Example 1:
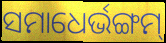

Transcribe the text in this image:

ସମାଧେର୍ଭଙ୍ଗମ୍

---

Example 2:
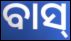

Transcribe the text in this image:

ବାସ୍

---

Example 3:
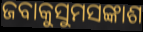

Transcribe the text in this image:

ଜବାକୁସୁମସଙ୍କାଶ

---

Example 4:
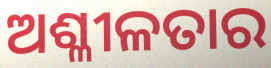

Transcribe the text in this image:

ଅଶ୍ଳୀଳତାର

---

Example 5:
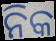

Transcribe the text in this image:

ନିକ